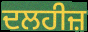
ਦਲਹੀਜ਼